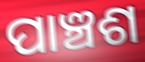
ପାଞ୍ଚଶ